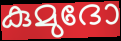
കുമുദോ